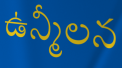
ఉన్మీలన